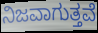
ನಿಜವಾಗುತ್ತವೆ